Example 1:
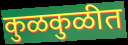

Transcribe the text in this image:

कुळकुळीत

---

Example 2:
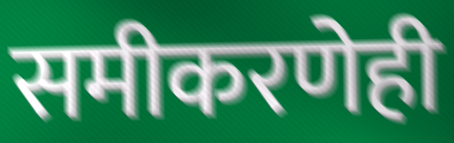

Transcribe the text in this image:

समीकरणेही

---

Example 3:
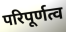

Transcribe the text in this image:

परिपूर्णत्व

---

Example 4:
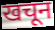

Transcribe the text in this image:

खचून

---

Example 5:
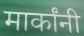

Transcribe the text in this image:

मार्कांनी